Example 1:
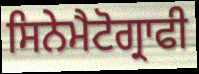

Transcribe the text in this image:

ਸਿਨੇਮੈਟੋਗ੍ਰਾਫੀ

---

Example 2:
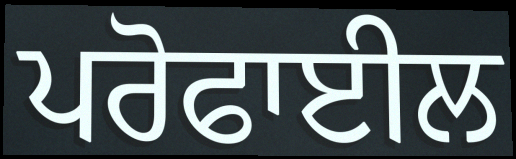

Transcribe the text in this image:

ਪਰੋਫਾਈਲ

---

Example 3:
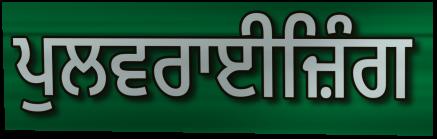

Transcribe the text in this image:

ਪੁਲਵਰਾਈਜ਼ਿੰਗ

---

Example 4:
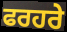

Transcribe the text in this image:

ਫਰਹਰੇ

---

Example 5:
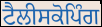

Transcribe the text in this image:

ਟੈਲੀਸਕੋਪਿੰਗ